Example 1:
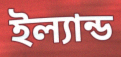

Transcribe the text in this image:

ইল্যান্ড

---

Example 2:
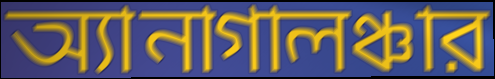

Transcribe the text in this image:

অ্যানাগালঞ্চার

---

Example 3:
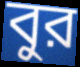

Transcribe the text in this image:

বুর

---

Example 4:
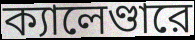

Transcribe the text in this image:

ক্যালেণ্ডারে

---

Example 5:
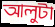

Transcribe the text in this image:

আলুটা